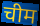
चीम